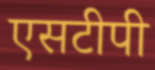
एसटीपी